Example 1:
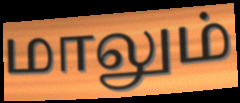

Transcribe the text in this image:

மாலும்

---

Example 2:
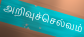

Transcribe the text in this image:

அறிவுச்செல்வம்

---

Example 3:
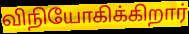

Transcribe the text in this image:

விநியோகிக்கிறார்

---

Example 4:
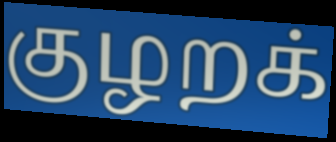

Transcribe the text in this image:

குழறக்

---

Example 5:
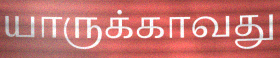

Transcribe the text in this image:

யாருக்காவது